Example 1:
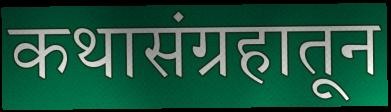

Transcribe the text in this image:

कथासंग्रहातून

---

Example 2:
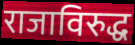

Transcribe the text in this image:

राजाविरुद्ध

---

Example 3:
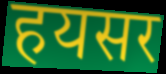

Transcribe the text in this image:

हयसर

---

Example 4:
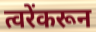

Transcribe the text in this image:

त्वरेंकरून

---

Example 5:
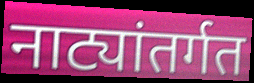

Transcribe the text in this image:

नाट्यांतर्गत